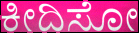
ಕೀದಿಸೋ